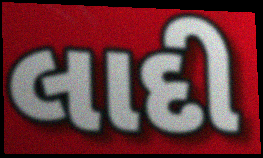
લાદી